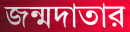
জন্মদাতার